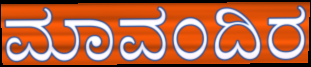
ಮಾವಂದಿರ